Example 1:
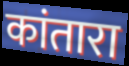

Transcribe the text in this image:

कांतारा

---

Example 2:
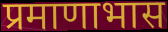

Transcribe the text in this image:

प्रमाणाभास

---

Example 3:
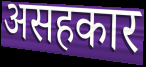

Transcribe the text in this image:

असहकार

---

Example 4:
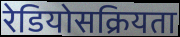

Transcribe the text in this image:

रेडियोसक्रियता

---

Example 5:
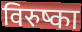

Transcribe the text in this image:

विरुष्का